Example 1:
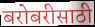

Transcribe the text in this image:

बरोबरीसाठी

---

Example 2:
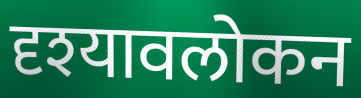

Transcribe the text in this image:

दृश्‍यावलोकन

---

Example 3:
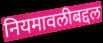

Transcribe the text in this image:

नियमावलीबद्दल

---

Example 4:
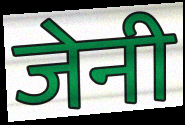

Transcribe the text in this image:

जेनी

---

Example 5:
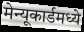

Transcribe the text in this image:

मेन्यूकार्डमध्ये